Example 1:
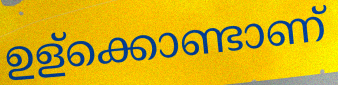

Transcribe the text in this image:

ഉള്ക്കൊണ്ടാണ്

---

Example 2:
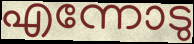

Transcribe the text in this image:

എന്നോടു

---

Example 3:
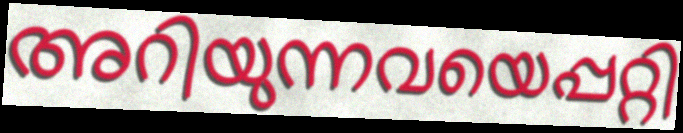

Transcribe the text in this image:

അറിയുന്നവയെപ്പറ്റി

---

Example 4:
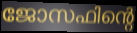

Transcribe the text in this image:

ജോസഫിന്റെ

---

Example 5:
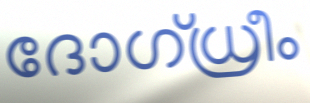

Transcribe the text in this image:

ദോഗ്ധ്രീം